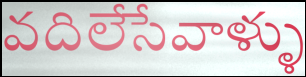
వదిలేసేవాళ్ళు